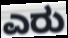
ಎರು